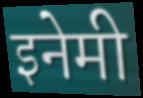
इनेमी